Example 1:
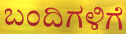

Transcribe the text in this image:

ಬಂದಿಗಳಿಗೆ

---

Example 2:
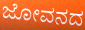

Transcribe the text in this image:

ಜೋವನದ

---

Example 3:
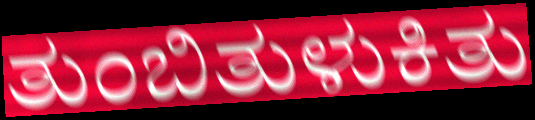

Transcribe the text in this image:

ತುಂಬಿತುಳುಕಿತು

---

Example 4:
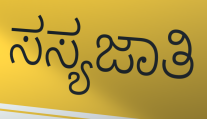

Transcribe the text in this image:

ಸಸ್ಯಜಾತಿ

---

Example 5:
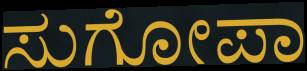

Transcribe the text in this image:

ಸುಗೋಪಾ